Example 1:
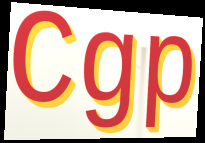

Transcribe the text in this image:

Cgp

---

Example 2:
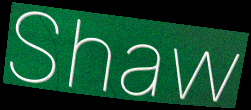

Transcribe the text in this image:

Shaw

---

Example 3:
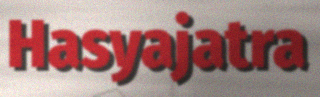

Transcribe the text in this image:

Hasyajatra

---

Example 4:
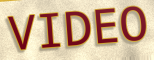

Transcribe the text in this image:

VIDEO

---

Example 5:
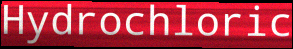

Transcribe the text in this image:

Hydrochloric